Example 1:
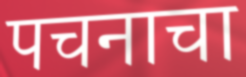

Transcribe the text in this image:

पचनाचा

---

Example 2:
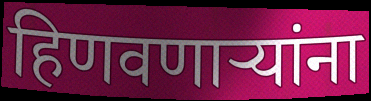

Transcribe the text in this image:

हिणवणाऱ्यांना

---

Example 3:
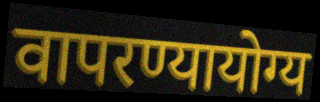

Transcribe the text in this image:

वापरण्यायोग्य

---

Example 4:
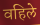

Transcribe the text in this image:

वहिले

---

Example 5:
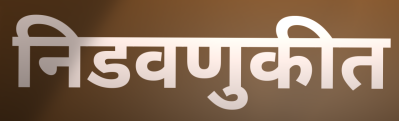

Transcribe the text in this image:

निडवणुकीत